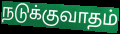
நடுக்குவாதம்